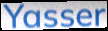
Yasser